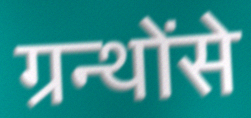
ग्रन्थोंसे